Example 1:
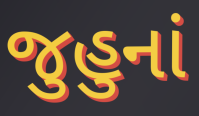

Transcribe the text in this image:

જુહુનાં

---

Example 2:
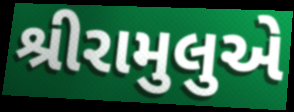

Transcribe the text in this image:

શ્રીરામુલુએ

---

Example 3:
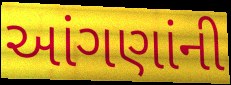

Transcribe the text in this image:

આંગણાંની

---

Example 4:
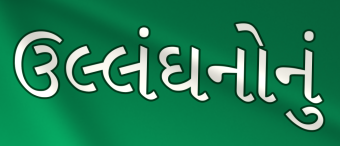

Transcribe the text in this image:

ઉલ્લંઘનોનું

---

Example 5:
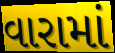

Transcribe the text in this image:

વારામાં